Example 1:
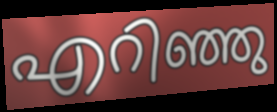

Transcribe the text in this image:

എറിഞ്ഞു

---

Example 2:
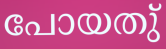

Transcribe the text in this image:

പോയതു്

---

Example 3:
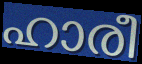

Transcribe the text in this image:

ഹാരീ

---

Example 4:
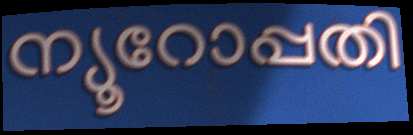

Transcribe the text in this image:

ന്യൂറോപ്പതി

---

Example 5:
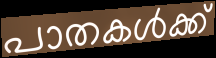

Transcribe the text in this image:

പാതകൾക്ക്